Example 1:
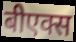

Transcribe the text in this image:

बीएक्स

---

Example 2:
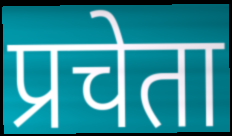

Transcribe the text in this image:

प्रचेता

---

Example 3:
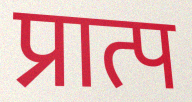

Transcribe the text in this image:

प्रात्प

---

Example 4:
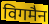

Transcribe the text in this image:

विगमैन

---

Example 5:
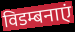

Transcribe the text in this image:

विडम्बनाएं